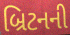
બ્રિટનની